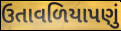
ઉતાવળિયાપણું